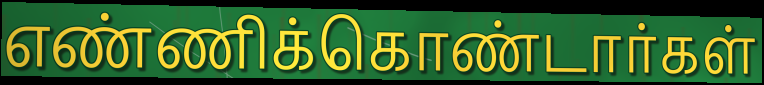
எண்ணிக்கொண்டார்கள்